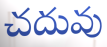
చదువు